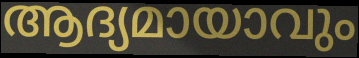
ആദ്യമായാവും